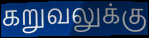
கறுவலுக்கு